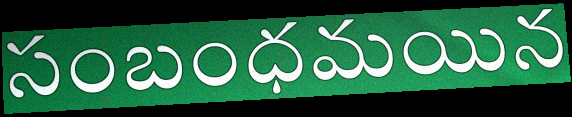
సంబంధమయిన